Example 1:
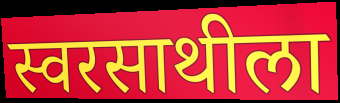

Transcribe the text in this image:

स्वरसाथीला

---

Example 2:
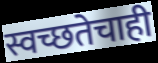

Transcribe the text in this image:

स्वच्छतेचाही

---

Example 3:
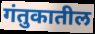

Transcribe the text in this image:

गंतुकातील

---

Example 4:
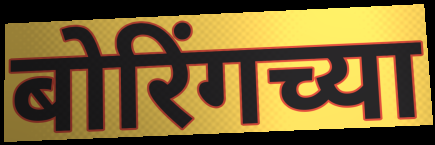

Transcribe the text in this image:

बोरिंगच्या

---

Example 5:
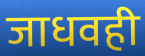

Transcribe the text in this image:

जाधवही